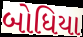
બોધિયા